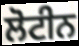
ਲੋਟੀਨ